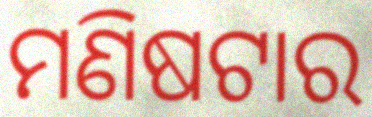
ମଣିଷଟାର